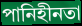
পানিহীনতা